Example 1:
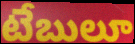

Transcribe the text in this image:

టేబులూ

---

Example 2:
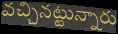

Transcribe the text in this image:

వచ్చినట్టున్నారు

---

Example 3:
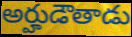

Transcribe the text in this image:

అర్హుడౌతాడు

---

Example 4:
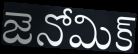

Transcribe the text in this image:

జెనోమిక్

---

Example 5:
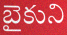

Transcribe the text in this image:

బైకుని